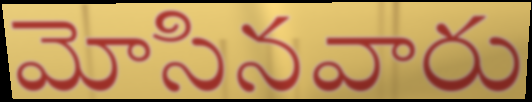
మోసినవారు